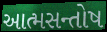
આત્મસન્તોષ